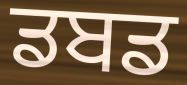
ਡਬਡ